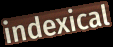
indexical